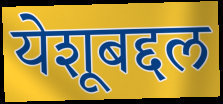
येशूबद्दल